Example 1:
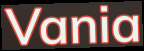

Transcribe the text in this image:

Vania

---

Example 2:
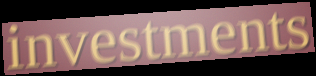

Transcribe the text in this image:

investments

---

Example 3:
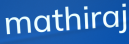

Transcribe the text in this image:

mathiraj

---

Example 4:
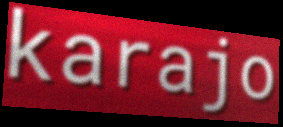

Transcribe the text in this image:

karajo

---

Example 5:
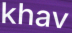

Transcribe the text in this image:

khav